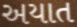
અયાત